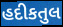
હદીકતુલ